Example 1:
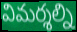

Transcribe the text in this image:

విమర్శల్ని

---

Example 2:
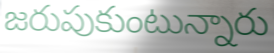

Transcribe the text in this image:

జరుపుకుంటున్నారు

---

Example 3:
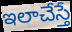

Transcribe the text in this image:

ఇలాచేస్తే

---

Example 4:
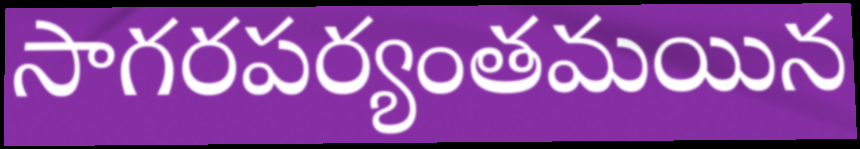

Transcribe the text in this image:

సాగరపర్యంతమయిన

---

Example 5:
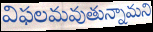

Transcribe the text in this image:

విఫలమవుతున్నామని